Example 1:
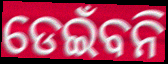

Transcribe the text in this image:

ଡେଇଁବନି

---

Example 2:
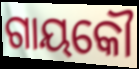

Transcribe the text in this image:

ଗାୟକୌ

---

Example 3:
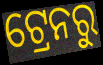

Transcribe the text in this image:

ଟ୍ରେନରୁ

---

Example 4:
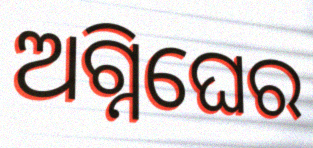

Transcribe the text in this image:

ଅଗ୍ନିଘେର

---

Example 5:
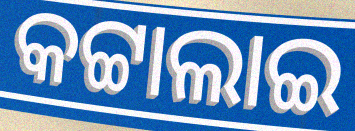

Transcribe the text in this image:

କଟ୍ଟାଲାଇ